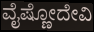
ವೈಷ್ಣೋದೇವಿ